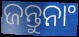
ଜନ୍ତୁନାଂ